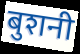
बुशनी